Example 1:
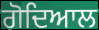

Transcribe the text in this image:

ਗੋਦਿਆਲ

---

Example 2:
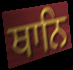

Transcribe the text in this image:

ਥਾਨਿ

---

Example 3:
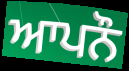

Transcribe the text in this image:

ਆਪਨੌ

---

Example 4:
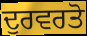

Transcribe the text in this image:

ਦੁਰਵਰਤੋ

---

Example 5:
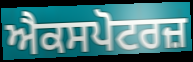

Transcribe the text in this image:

ਐਕਸਪੋਟਰਜ਼